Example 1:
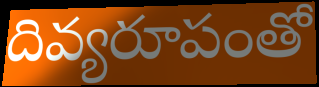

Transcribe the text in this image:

దివ్యరూపంతో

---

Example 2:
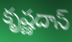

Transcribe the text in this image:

కృష్ణదాస్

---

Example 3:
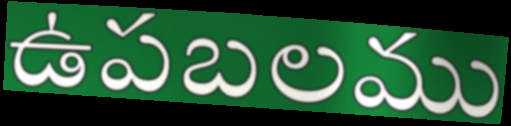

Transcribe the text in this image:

ఉపబలము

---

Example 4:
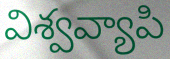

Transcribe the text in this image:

విశ్వవ్యాపి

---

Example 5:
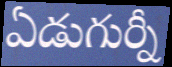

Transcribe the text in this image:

ఏడుగుర్నీ